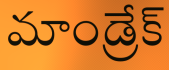
మాండ్రేక్